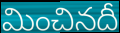
మించినదీ